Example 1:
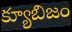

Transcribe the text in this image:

క్యూబిజం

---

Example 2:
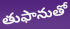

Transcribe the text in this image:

తుఫానుతో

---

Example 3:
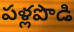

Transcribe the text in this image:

పళ్లపొడి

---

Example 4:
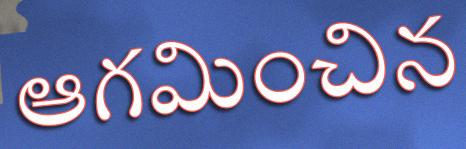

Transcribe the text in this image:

ఆగమించిన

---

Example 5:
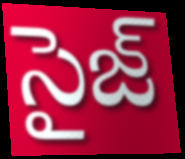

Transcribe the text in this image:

సైజ్